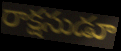
రాక్షసుడూ